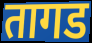
तागड